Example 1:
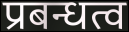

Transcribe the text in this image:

प्रबन्धत्व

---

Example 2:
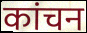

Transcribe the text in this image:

कांचन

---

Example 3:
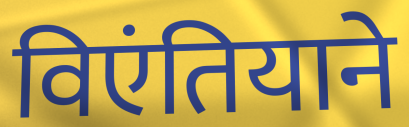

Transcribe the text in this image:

विएंतियाने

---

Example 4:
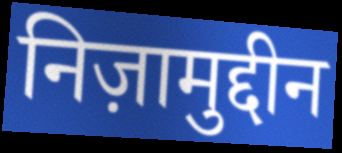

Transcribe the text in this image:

निज़ामुद्दीन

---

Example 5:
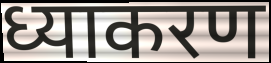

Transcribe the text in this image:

ध्याकरण